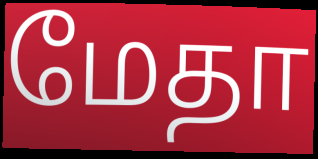
மேதா